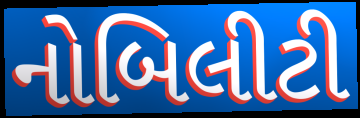
નોબિલીટી